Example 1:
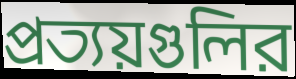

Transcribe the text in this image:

প্রত্যয়গুলির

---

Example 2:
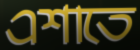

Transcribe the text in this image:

এশাতে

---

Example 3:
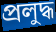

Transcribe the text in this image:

প্রলুদ্ধ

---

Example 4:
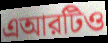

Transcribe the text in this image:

এআরটিও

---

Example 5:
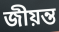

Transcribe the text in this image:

জীয়ন্ত